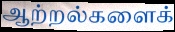
ஆற்றல்களைக்